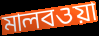
মালবওয়া